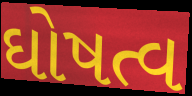
ઘોષત્વ